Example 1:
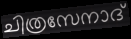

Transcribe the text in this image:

ചിത്രസേനാദ്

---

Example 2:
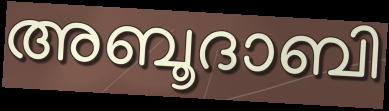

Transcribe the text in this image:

അബൂദാബി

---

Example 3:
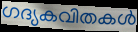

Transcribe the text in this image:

ഗദ്യകവിതകൾ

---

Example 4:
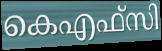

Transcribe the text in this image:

കെഎഫ്സി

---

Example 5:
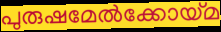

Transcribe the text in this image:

പുരുഷമേൽക്കോയ്മ